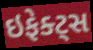
ઇફેક્ટ્સ